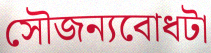
সৌজন্যবোধটা